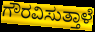
ಗೌರವಿಸುತ್ತಾಳೆ